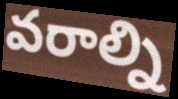
వరాల్ని